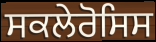
ਸਕਲੇਰੋਸਿਸ